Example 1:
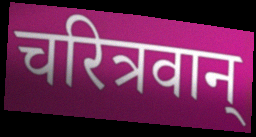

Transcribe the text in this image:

चरित्रवान्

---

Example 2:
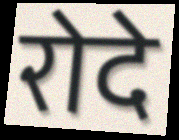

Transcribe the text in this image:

रोदे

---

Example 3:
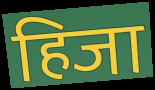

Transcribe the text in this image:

हिजा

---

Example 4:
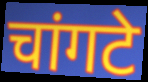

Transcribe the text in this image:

चांगटे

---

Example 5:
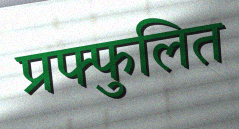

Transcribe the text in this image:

प्रफ्फुलित